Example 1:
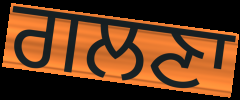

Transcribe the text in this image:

ਗਲਣਾ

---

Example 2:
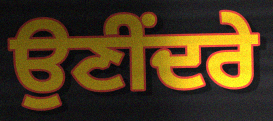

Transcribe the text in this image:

ਉਣੀਂਦਰੇ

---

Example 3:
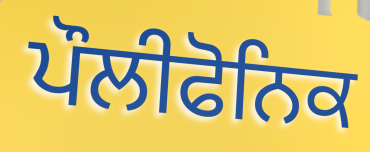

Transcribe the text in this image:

ਪੌਲੀਫੋਨਿਕ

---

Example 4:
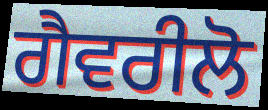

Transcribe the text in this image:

ਗੈਵਰੀਲੋ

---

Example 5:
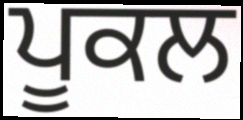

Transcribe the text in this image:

ਪੂਕਲ